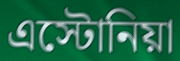
এস্টোনিয়া